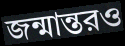
জন্মান্তরও